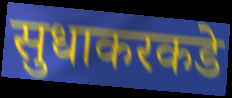
सुधाकरकडे